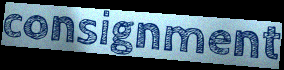
consignment